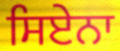
ਸਿਏਨਾ